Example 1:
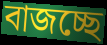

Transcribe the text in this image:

বাজচ্ছে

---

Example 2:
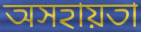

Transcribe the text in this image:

অসহায়তা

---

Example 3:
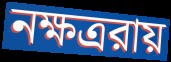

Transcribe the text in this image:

নক্ষত্ররায়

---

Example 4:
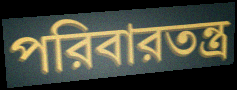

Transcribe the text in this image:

পরিবারতন্ত্র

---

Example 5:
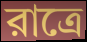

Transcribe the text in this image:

রাত্রে